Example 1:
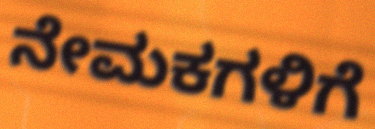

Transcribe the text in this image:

ನೇಮಕಗಳಿಗೆ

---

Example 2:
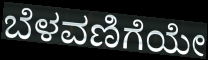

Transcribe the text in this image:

ಬೆಳವಣಿಗೆಯೇ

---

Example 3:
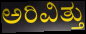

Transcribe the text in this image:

ಅರಿವಿತ್ತು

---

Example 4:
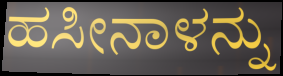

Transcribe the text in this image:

ಹಸೀನಾಳನ್ನು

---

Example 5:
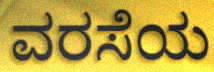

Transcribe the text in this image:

ವರಸೆಯ